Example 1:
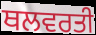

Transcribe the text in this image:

ਥਲਵਰਤੀ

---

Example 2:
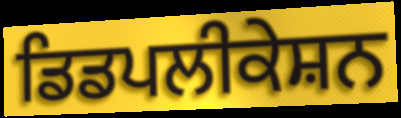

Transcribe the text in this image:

ਡਿਡਪਲੀਕੇਸ਼ਨ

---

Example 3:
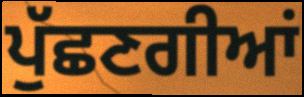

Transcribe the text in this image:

ਪੁੱਛਣਗੀਆਂ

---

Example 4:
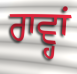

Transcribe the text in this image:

ਰਾਵ੍ਹਾਂ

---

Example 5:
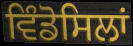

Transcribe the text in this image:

ਵਿੰਡੋਸਿਲਾਂ